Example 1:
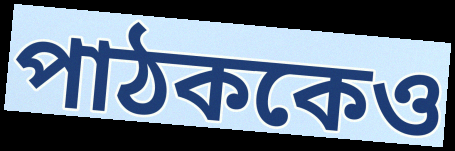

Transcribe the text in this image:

পাঠককেও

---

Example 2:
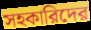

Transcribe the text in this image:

সহকারিদের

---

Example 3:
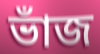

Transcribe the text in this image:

ভাঁজ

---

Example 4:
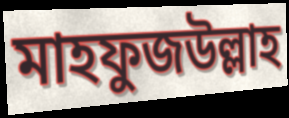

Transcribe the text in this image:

মাহফুজউল্লাহ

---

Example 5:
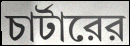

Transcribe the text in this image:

চার্টারের